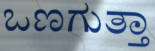
ಒಣಗುತ್ತಾ